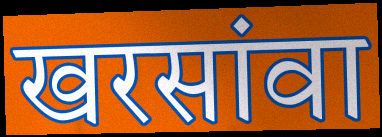
खरसांवा